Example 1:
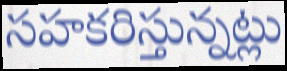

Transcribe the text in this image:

సహకరిస్తున్నట్లు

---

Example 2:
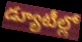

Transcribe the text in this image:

డ్యూటీల్లో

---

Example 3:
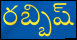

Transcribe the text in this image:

రబ్బిష్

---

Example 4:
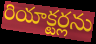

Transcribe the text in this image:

రియాక్టర్లను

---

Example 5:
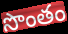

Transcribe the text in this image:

సొంతం